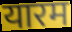
यारम